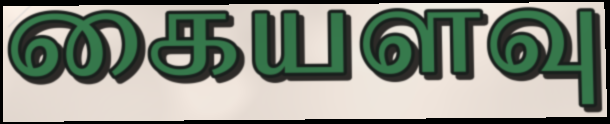
கையளவு